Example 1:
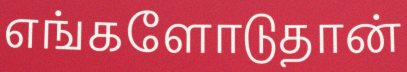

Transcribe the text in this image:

எங்களோடுதான்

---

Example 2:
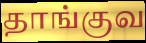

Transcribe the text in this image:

தாங்குவ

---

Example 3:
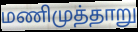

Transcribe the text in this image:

மணிமுத்தாறு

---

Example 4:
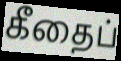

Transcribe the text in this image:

கீதைப்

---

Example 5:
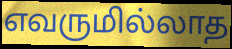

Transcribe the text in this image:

எவருமில்லாத